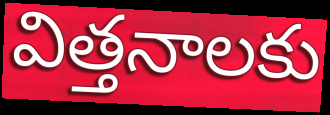
విత్తనాలకు